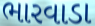
ભારવાડા